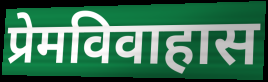
प्रेमविवाहास